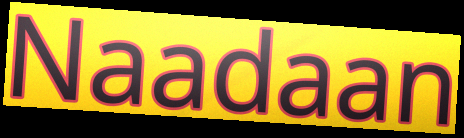
Naadaan